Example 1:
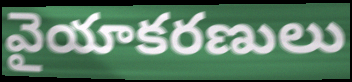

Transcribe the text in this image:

వైయాకరణులు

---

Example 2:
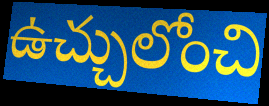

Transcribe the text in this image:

ఉచ్చులోంచి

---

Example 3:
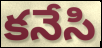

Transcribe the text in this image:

కనేసి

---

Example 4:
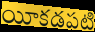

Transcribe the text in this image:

యీకడపటి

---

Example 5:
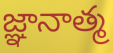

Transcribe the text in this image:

జ్ఞానాత్మ